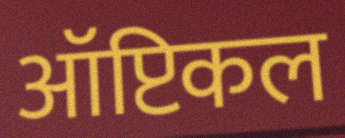
ऑप्टिकल